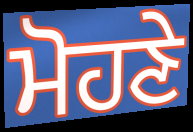
ਮੋਹਣੇ